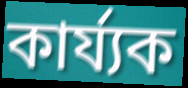
কাৰ্য্যক